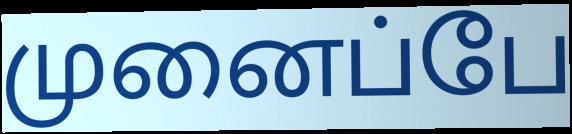
முனைப்பே